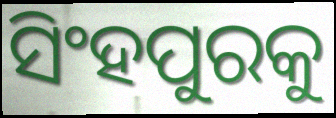
ସିଂହପୁରକୁ